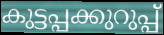
കുട്ടപ്പക്കുറുപ്പ്